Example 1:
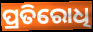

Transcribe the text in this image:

ପ୍ରତିରୋଧି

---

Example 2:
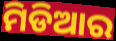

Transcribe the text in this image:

ମିଡିଆର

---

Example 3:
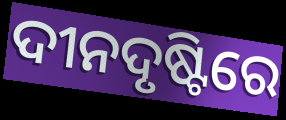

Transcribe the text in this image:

ଦୀନଦୃଷ୍ଟିରେ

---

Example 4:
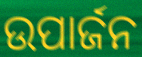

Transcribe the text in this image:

ଉପାର୍ଜନ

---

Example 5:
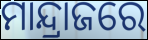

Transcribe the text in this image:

ମାନ୍ଦ୍ରାଜରେ